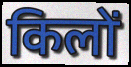
किलों